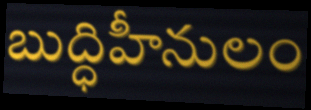
బుద్ధిహీనులం